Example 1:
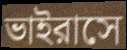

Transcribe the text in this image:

ভাইরাসে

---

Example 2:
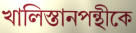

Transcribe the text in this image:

খালিস্তানপন্থীকে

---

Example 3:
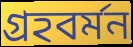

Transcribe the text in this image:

গ্রহবর্মন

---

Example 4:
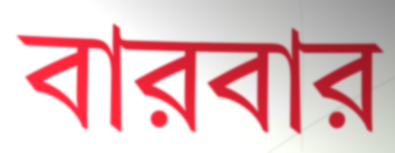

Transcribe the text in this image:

বারবার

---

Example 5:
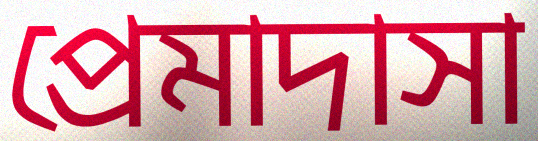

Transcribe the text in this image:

প্রেমাদাসা